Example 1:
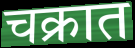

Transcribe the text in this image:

चक्रात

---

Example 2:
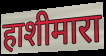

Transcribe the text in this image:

हाशीमारा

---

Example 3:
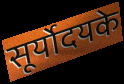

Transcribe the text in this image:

सूर्योदयके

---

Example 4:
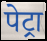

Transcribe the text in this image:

पेट्रा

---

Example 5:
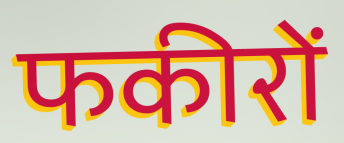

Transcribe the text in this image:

फकीरों